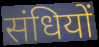
संधियों